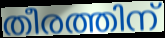
തീരത്തിന്